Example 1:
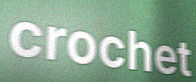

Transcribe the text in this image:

crochet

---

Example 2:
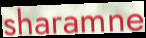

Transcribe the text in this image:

sharamne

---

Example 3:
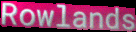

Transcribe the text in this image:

Rowlands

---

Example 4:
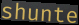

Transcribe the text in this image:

shunte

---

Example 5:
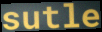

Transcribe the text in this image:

sutle